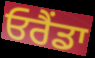
ਓਰੈਂਡਾ